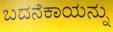
ಬದನೆಕಾಯನ್ನು